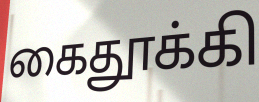
கைதூக்கி